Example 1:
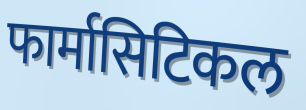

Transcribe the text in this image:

फार्मासिटिकल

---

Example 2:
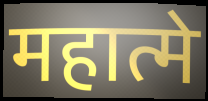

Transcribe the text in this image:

महात्मे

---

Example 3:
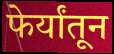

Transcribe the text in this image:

फेर्यांतून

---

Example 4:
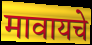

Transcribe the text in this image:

मावायचे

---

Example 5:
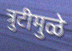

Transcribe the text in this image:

त्रुटीमुळे